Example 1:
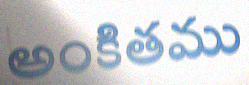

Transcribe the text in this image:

అంకితము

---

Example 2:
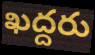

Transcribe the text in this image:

ఖద్దరు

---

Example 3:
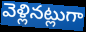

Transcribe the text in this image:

వెళ్లినట్లుగా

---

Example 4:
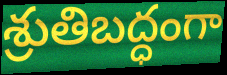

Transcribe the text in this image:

శ్రుతిబద్ధంగా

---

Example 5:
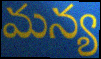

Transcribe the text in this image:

మన్య